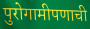
पुरोगामीपणाची